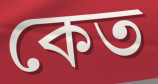
কেত